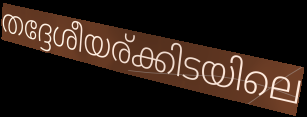
തദ്ദേശീയര്ക്കിടയിലെ